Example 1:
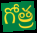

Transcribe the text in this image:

గోత్ర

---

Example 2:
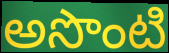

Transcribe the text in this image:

అసొంటి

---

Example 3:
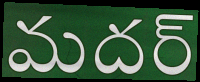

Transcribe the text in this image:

మదర్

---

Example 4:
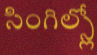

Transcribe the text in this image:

సింగిల్స్లో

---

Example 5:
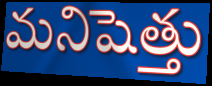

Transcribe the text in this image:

మనిషెత్తు